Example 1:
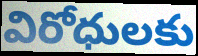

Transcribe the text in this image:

విరోధులకు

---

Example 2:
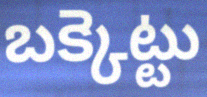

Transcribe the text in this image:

బక్కెట్టు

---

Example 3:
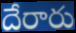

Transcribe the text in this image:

దేరారు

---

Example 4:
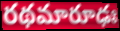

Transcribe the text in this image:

రథమారూఢః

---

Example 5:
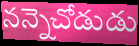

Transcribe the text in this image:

నన్నెచోడుడు